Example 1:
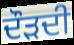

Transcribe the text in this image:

ਦੌੜਦੀ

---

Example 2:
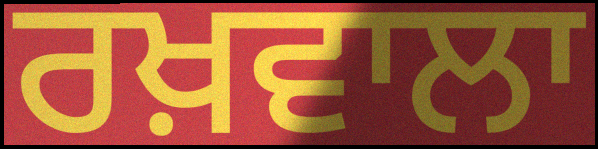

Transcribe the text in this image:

ਰਖ਼ਵਾਲਾ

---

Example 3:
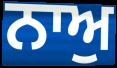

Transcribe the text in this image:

ਨਾਅੁ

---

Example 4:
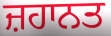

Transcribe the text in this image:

ਜ਼ਹਾਨਤ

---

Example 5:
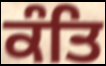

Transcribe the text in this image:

ਕੰਤਿ